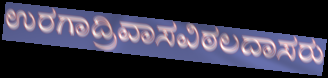
ಉರಗಾದ್ರಿವಾಸವಿಠಲದಾಸರು